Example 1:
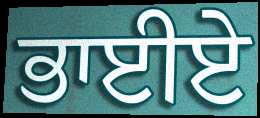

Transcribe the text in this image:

ਭਾਈਏ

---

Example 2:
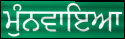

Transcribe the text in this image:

ਮੁੰਨਵਾਇਆ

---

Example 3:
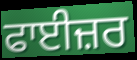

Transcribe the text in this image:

ਫਾਈਜ਼ਰ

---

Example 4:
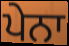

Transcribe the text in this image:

ਪੇਨਾ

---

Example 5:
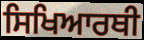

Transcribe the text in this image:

ਸਿਖਿਆਰਥੀ